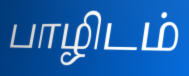
பாழிடம்